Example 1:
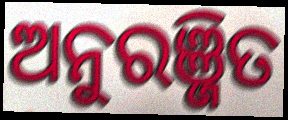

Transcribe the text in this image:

ଅନୁରଞ୍ଜିତ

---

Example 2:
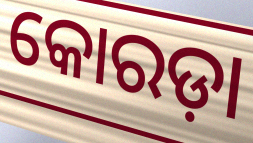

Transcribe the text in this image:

କୋରଡ଼ା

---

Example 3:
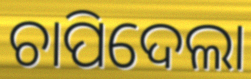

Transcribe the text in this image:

ଚାପିଦେଲା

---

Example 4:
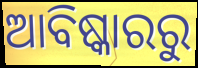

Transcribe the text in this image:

ଆବିଷ୍କାରରୁ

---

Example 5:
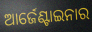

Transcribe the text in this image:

ଆର୍ଜେଣ୍ଟାଇନାର